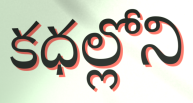
కధల్లోని